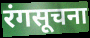
रंगसूचना